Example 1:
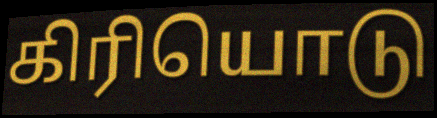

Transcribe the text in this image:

கிரியொடு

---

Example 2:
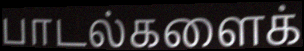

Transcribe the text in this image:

பாடல்களைக்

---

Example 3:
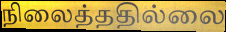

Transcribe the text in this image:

நிலைத்ததில்லை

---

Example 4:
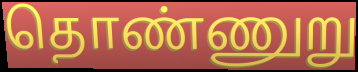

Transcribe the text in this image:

தொண்ணுறு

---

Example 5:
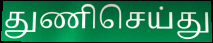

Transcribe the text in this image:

துணிசெய்து